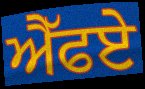
ਐੱਫਏ